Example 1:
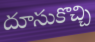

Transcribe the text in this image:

దూసుకొచ్చి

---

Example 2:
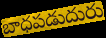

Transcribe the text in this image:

బాధపడుదురు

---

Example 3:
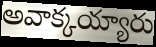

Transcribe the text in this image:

అవాక్కయ్యారు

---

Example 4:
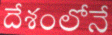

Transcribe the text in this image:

దేశంలోనే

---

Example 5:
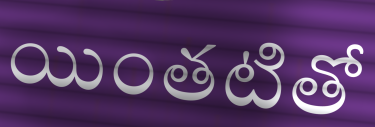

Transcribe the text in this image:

యింతటితో